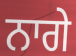
ਨਾਗੇ